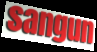
sangun